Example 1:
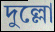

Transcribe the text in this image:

দুল্লো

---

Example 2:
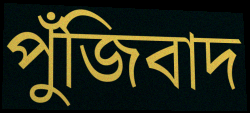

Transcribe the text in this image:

পুঁজিবাদ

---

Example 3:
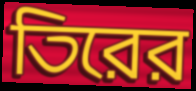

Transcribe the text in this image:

তিরের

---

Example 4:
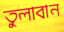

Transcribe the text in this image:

তুলাবান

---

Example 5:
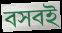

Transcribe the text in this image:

বসবই